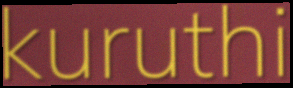
kuruthi